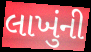
લાખુંની